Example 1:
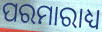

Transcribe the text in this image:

ପରମାରାଧ୍ୟ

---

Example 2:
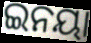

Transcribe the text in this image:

ଇନୟା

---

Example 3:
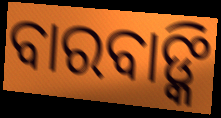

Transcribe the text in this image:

ବାରବାଙ୍କି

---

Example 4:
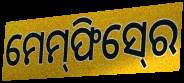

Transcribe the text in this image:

ମେମ୍‍ଫିସ୍‍ରେ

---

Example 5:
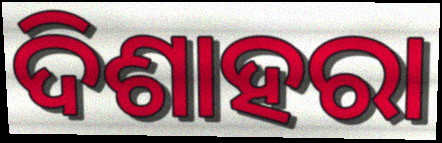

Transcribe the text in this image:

ଦିଶାହରା